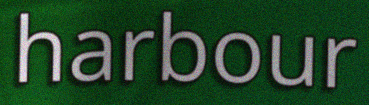
harbour